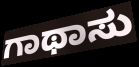
ಗಾಥಾಸು